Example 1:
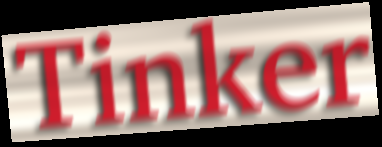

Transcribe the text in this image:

Tinker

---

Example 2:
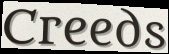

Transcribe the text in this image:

Creeds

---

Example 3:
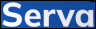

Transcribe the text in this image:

Serva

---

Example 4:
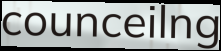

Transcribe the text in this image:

counceilng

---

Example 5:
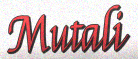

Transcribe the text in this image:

Mutali